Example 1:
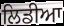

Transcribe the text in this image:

ਲਿਡੀਆ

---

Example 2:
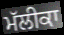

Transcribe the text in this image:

ਮੱਲੀਕਾ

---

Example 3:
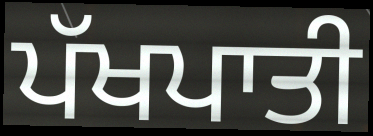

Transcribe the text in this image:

ਪੱਖਪਾਤੀ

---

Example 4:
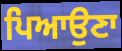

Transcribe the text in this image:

ਪਿਆਉਣਾ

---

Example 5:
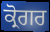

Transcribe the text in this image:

ਕ੍ਰੋਗਰ